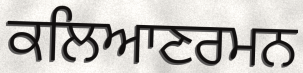
ਕਲਿਆਣਰਮਨ